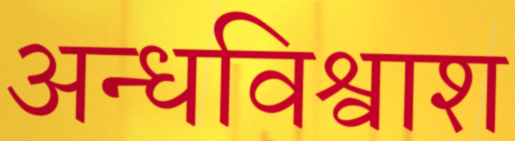
अन्धविश्वाश